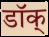
डॉक्